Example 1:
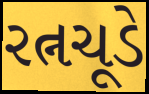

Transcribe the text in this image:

રત્નચૂડે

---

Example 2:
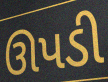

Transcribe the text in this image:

ઊપડી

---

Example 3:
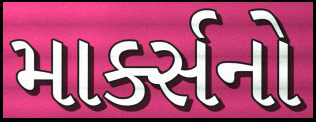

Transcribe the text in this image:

માર્ક્સનો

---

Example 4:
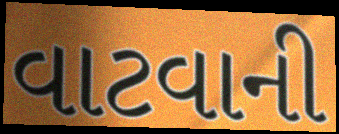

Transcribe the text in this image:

વાટવાની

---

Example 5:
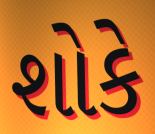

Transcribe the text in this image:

શોકે